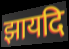
झायदि